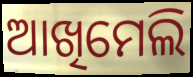
ଆଖିମେଲି